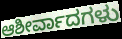
ಆಶೀರ್ವಾದಗಳು